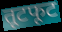
तूटफूट